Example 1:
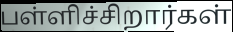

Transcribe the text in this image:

பள்ளிச்சிறார்கள்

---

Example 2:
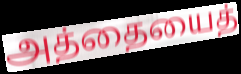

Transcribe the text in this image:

அத்தையைத்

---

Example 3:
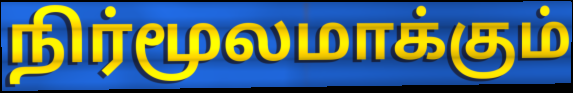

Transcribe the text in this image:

நிர்மூலமாக்கும்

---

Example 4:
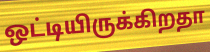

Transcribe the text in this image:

ஒட்டியிருக்கிறதா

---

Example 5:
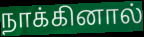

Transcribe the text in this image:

நாக்கினால்